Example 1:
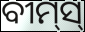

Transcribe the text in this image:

ବୀମ୍‌ସ୍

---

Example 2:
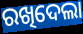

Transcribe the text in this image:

ରଖିଦେଲା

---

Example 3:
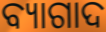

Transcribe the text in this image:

ବ୍ୟାଗାଦ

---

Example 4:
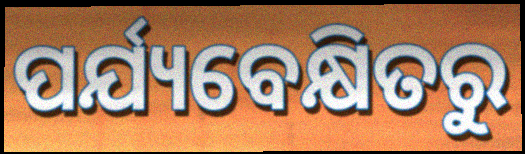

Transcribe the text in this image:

ପର୍ଯ୍ୟବେକ୍ଷିତରୁ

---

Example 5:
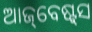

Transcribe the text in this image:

ଆଜ୍‌ବେଷ୍ଟ୍‌ସ